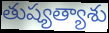
తుష్యత్యాశు